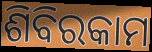
ଶିବିରକାମ